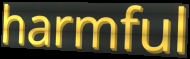
harmful